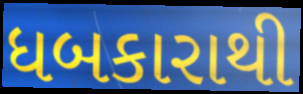
ધબકારાથી